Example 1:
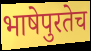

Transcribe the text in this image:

भाषेपुरतेच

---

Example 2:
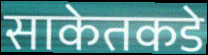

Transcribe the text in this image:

साकेतकडे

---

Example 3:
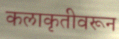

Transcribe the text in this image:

कलाकृतीवरून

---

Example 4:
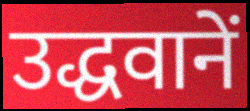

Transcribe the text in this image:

उद्धवानें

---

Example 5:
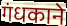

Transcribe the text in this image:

गंधकाने